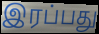
இரப்பது